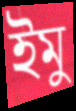
ইমু